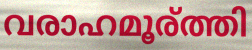
വരാഹമൂര്ത്തി